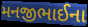
મનજીભાઈના